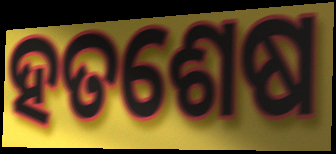
ହତଶେଷ